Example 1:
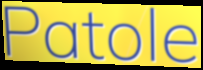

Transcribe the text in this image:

Patole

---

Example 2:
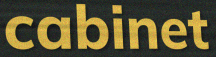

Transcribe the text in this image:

cabinet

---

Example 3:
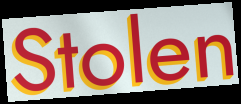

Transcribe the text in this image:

Stolen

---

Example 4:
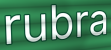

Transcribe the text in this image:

rubra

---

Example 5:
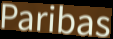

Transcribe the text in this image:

Paribas